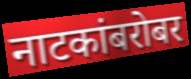
नाटकांबरोबर